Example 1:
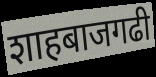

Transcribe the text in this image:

शाहबाजगढी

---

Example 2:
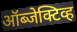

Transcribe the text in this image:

ऑब्जेक्टिव्ह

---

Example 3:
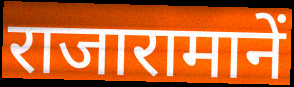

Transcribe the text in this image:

राजारामानें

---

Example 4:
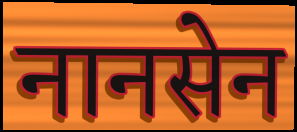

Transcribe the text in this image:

नानसेन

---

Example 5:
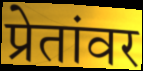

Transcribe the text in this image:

प्रेतांवर